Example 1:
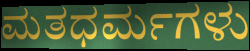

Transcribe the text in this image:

ಮತಧರ್ಮಗಳು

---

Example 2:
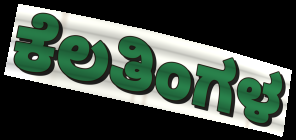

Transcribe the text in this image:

ಕೆಲತಿಂಗಳ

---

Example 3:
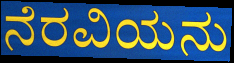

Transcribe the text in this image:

ನೆರವಿಯನು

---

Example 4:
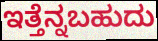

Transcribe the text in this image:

ಇತ್ತೆನ್ನಬಹುದು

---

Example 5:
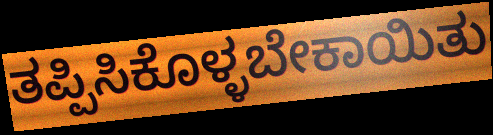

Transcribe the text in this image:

ತಪ್ಪಿಸಿಕೊಳ್ಳಬೇಕಾಯಿತು